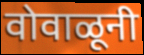
वोवाळूनी